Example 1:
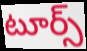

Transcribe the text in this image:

టూర్స్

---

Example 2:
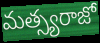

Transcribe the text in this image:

మత్స్యరాజో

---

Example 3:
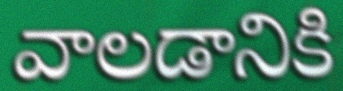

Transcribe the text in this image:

వాలడానికి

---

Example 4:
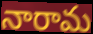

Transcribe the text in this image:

నారామ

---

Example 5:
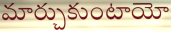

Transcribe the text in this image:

మార్చుకుంటాయో